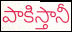
పాకిస్తానీ